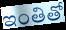
ఇంతితో